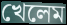
খেলেম